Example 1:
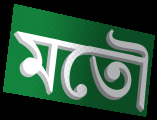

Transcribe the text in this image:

মতৌ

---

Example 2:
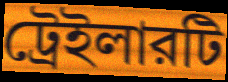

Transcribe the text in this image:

ট্রেইলারটি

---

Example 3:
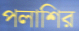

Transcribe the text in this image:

পলাশির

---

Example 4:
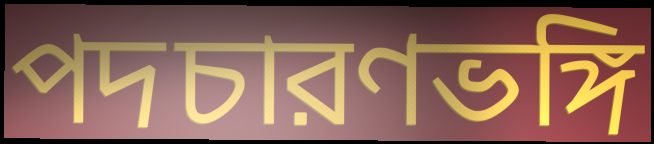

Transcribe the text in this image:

পদচারণভঙ্গি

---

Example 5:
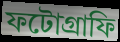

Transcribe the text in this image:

ফটোগ্রাফি